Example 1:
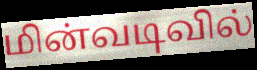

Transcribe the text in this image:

மின்வடிவில்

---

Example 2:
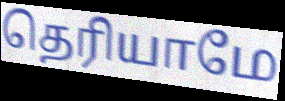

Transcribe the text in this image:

தெரியாமே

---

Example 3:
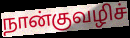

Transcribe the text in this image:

நான்குவழிச்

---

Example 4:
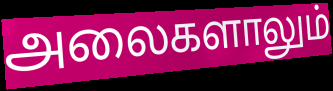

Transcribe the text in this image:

அலைகளாலும்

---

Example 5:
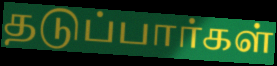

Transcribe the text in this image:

தடுப்பார்கள்